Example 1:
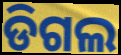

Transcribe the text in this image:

ଡିଗଲ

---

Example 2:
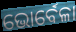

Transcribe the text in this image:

ଭୋର୍ବେଳା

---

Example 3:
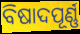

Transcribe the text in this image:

ବିଷାଦପୂର୍ଣ୍ଣ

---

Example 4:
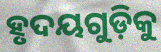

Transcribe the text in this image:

ହୃଦୟଗୁଡ଼ିକୁ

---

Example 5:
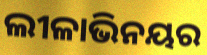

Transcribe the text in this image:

ଲୀଳାଭିନୟର